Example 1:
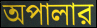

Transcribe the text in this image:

অপালার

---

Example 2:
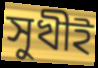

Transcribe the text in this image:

সুখীই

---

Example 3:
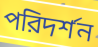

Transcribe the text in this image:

পরিদর্শন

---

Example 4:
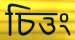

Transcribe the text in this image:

চিত্তং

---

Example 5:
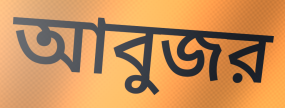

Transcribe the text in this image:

আবুজর